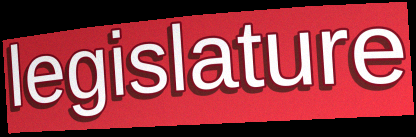
legislature